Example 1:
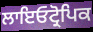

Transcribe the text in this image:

ਲਾਇਓਟ੍ਰੋਪਿਕ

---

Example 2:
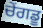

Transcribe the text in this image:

ਚੇਂਗਡੂ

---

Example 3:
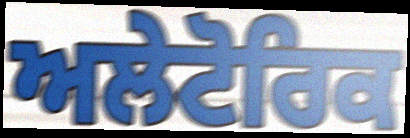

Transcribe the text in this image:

ਅਲੇਟੋਰਿਕ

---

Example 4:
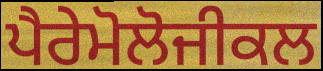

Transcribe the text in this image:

ਪੈਰੇਮੋਲੋਜੀਕਲ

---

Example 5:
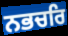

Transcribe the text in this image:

ਨਭਚਰਿ